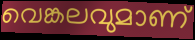
വെങ്കലവുമാണ്